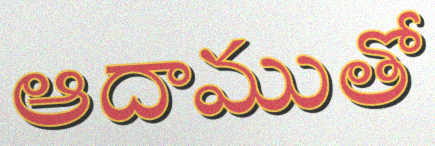
ఆదాముతో